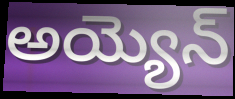
అయ్యెన్